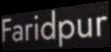
Faridpur